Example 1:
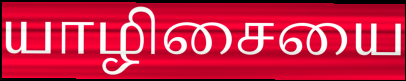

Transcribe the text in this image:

யாழிசையை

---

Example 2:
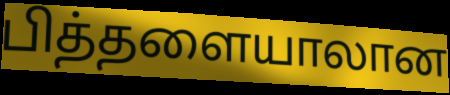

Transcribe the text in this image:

பித்தளையாலான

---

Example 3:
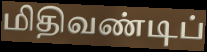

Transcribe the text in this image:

மிதிவண்டிப்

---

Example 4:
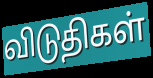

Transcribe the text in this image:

விடுதிகள்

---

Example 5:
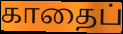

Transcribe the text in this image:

காதைப்